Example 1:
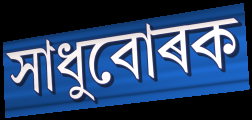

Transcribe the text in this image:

সাধুবোৰক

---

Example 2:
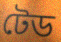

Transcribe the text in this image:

টেড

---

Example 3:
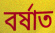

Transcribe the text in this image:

বৰ্ষাত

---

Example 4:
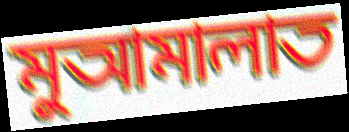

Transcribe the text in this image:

মুআমালাত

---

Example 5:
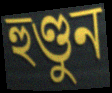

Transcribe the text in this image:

হুণ্ডুন